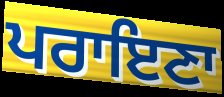
ਪਰਾਇਣਾ